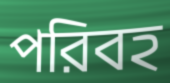
পরিবহ